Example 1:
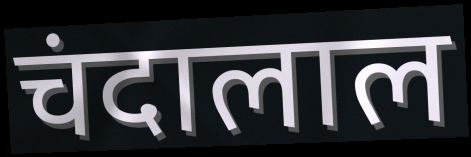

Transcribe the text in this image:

चंदालाल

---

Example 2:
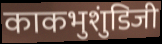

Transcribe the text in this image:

काकभुशुंडिजी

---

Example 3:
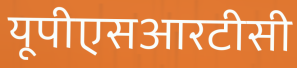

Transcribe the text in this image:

यूपीएसआरटीसी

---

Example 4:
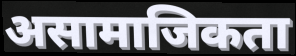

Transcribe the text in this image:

असामाजिकता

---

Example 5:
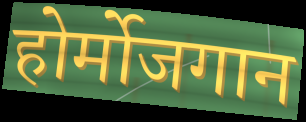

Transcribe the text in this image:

होर्मोजगान